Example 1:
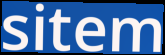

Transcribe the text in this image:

sitem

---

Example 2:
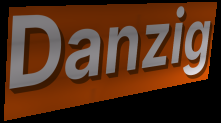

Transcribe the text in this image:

Danzig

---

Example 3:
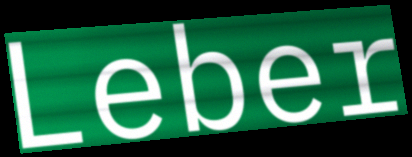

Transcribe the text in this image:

Leber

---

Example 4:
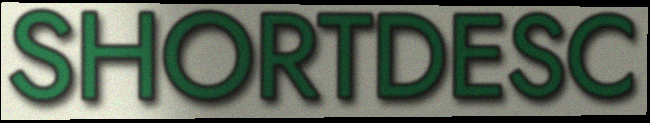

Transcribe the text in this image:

SHORTDESC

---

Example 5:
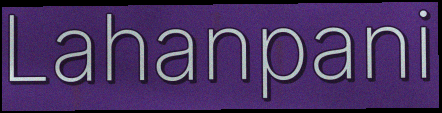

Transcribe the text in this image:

Lahanpani